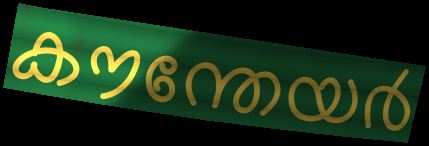
കൗന്തേയർ